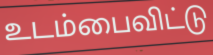
உடம்பைவிட்டு